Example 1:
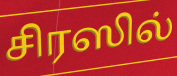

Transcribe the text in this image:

சிரஸில்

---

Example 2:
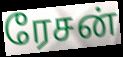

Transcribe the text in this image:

ரேசன்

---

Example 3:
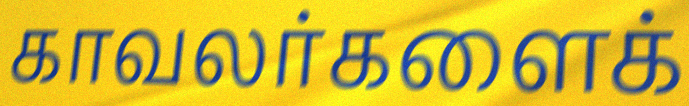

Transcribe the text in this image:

காவலர்களைக்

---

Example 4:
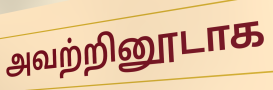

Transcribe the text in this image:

அவற்றினூடாக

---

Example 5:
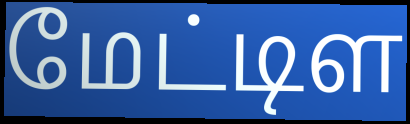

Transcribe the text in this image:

மேட்டிள